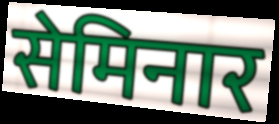
सेमिनार